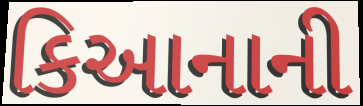
કિઆનાની